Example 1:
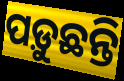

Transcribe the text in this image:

ପଡ଼ୁଛନ୍ତି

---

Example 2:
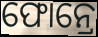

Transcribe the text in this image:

ଫୋନ୍ରେ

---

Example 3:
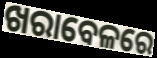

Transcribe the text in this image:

ଖରାବେଳରେ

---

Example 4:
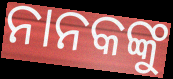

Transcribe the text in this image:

ନାନକଙ୍କୁ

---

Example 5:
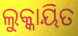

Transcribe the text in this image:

ଲୁକ୍କାୟିତ